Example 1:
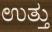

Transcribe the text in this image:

ಉತ್ತು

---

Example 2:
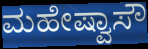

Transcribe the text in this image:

ಮಹೇಷ್ವಾಸೌ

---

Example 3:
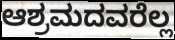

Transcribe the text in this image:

ಆಶ್ರಮದವರೆಲ್ಲ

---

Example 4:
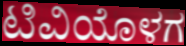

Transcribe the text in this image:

ಟಿವಿಯೊಳಗ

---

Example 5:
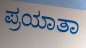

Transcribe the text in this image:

ಪ್ರಯಾತಾ